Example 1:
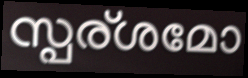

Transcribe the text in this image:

സ്പര്ശമോ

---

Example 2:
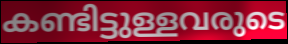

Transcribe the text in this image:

കണ്ടിട്ടുള്ളവരുടെ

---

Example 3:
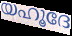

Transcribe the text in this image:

യഹൂദേ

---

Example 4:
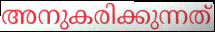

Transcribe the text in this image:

അനുകരിക്കുന്നത്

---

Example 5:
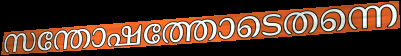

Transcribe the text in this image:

സന്തോഷത്തോടെതന്നെ